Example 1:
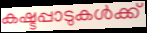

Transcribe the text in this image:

കഷ്ടപ്പാടുകൾക്ക്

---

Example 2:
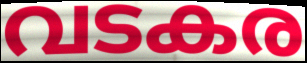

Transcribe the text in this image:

വടകര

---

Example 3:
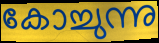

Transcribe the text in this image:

കോച്ചുന്നു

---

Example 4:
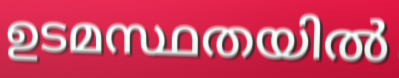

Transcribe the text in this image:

ഉടമസ്ഥതയിൽ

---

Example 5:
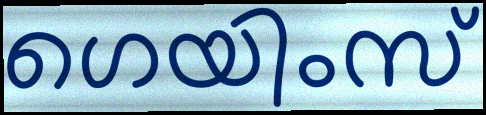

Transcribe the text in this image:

ഗെയിംസ്